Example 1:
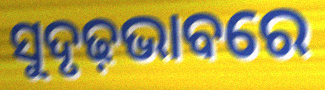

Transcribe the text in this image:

ସୁଦୃଢ଼ଭାବରେ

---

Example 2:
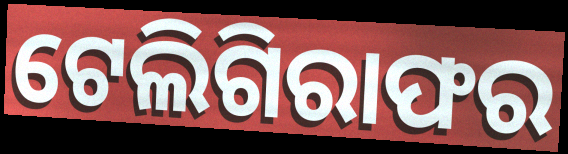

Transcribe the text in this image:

ଟେଲିଗିରାଫର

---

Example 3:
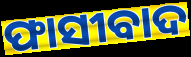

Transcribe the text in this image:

ଫାସୀବାଦ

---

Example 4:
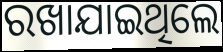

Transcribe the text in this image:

ରଖାଯାଇଥିଲେ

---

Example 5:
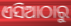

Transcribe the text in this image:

ଏସିଆଠାରୁ